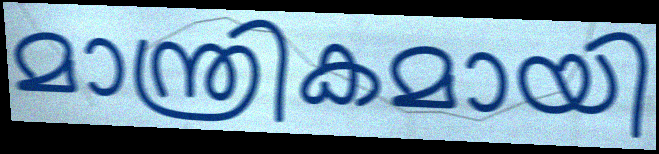
മാന്ത്രികമായി